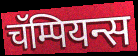
चॅम्पियन्स